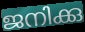
ജനിക്കു